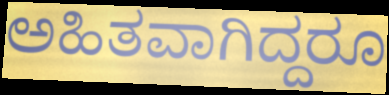
ಅಹಿತವಾಗಿದ್ದರೂ